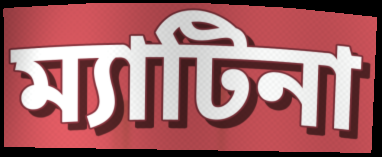
ম্যাটিনা